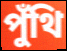
পুঁথি